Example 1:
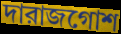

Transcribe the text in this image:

দারাজগোশ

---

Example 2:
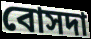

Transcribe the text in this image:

বোসদা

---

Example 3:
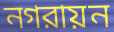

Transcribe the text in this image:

নগরায়ন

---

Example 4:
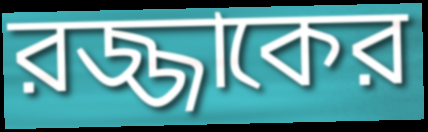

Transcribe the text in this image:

রজ্জাকের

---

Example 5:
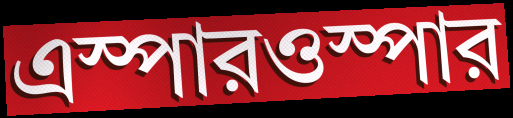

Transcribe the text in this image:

এস্পারওস্পার